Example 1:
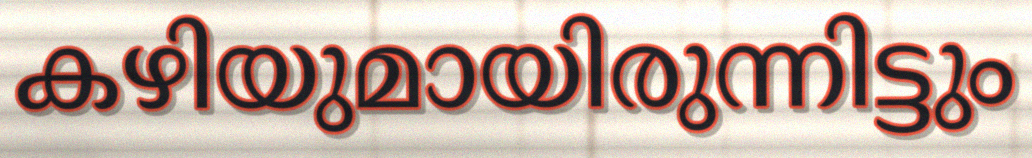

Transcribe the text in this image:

കഴിയുമായിരുന്നിട്ടും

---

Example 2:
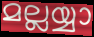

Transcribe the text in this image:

മല്ലയ്യാ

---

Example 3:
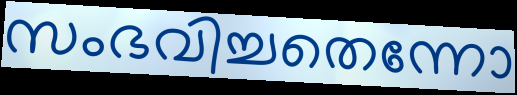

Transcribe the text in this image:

സംഭവിച്ചതെന്നോ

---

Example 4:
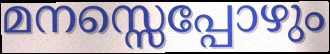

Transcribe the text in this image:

മനസ്സെപ്പോഴും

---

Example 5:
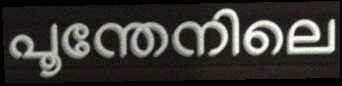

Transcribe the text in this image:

പൂന്തേനിലെ